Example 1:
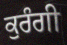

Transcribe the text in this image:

ਕੁਰੰਗੀ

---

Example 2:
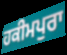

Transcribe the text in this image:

ਹਕੀਮਪੁਰਾ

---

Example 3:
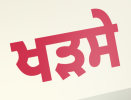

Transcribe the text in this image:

ਖੜਸੇ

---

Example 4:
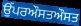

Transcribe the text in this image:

ਉੱਪਰਔਸਤਔਸਤ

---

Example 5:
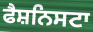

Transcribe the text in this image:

ਫੈਸ਼ਨਿਸਟਾ